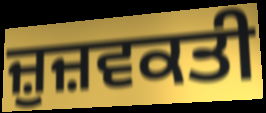
ਜ਼ੁਜ਼ਵਕਤੀ